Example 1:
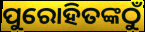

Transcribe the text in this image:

ପୁରୋହିତଙ୍କଠୁଁ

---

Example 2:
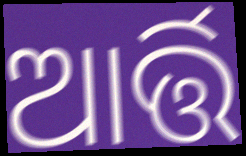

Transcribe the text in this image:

ଆର୍ତ୍ତି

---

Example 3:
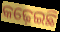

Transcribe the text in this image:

କଢ଼େଇଛି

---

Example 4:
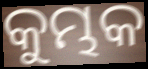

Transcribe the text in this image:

କୁମ୍ଭକ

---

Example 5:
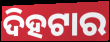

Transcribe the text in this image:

ଦିହଟାର